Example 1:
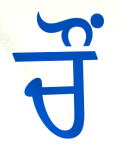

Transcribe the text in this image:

ਚੌਂ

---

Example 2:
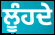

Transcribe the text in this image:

ਲੂੰਹਦੇ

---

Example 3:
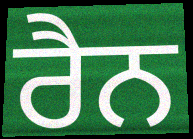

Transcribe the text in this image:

ਰੈਨ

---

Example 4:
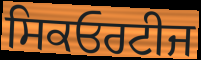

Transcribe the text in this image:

ਸਿਕਓਰਟੀਜ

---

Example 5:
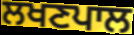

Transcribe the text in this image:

ਲਖਣਪਾਲ